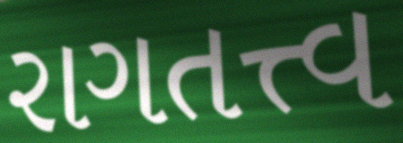
રાગતત્ત્વ